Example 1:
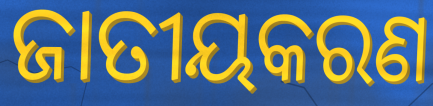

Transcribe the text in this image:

ଜାତୀୟକରଣ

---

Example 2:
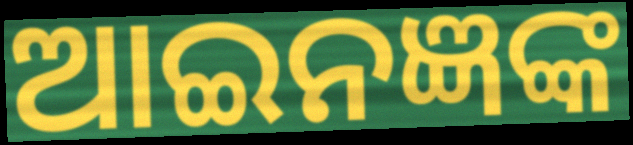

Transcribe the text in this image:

ଆଇନଜ୍ଞଙ୍କ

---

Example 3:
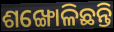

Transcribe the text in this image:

ଶଙ୍ଖୋଳିଛନ୍ତି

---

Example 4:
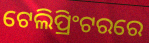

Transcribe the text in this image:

ଟେଲିପ୍ରିଂଟରରେ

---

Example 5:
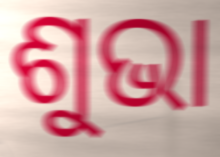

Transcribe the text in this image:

ଶୁଭା